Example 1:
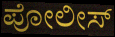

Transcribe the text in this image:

ಪೋಲೀಸ್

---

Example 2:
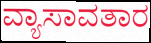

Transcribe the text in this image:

ವ್ಯಾಸಾವತಾರ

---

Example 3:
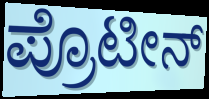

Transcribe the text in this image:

ಪ್ರೊಟೀನ್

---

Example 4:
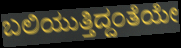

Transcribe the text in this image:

ಬಲಿಯುತ್ತಿದ್ದಂತೆಯೇ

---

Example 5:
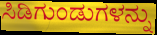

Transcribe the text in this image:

ಸಿಡಿಗುಂಡುಗಳನ್ನು